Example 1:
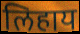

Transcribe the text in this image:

लिहाय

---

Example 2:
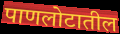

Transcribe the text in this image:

पाणलोटातील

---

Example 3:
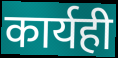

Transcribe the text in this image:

कार्यही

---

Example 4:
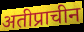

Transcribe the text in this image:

अतीप्राचीन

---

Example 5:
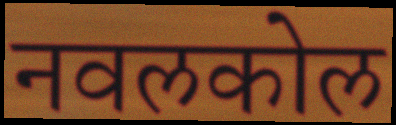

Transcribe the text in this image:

नवलकोल